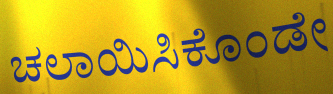
ಚಲಾಯಿಸಿಕೊಂಡೇ